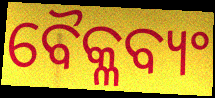
ବୈକ୍ଳବ୍ୟଂ